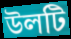
উলটি